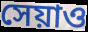
সেয়াও